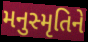
મનુસ્મૃતિને